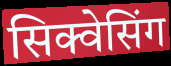
सिक्वेसिंग